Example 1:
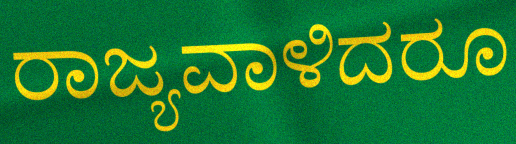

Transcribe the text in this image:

ರಾಜ್ಯವಾಳಿದರೂ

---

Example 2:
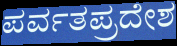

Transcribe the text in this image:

ಪರ್ವತಪ್ರದೇಶ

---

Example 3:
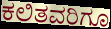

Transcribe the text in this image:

ಕಲಿತವರಿಗೂ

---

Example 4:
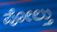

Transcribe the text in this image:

ಪೋಲ್ತು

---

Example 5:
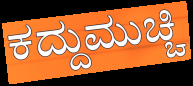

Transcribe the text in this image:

ಕದ್ದುಮುಚ್ಚಿ